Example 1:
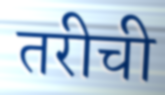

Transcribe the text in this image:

तरीची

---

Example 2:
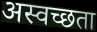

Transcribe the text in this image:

अस्वच्छता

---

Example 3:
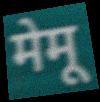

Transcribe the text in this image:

मेमू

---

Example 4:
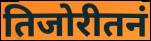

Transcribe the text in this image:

तिजोरीतनं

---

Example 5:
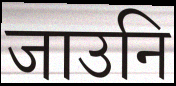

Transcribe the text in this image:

जाउनि